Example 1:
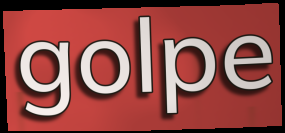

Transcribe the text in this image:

golpe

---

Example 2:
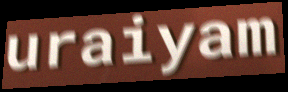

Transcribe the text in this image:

uraiyam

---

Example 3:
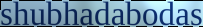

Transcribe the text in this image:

shubhadabodas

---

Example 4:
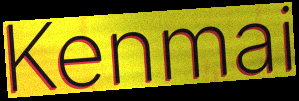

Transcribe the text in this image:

Kenmai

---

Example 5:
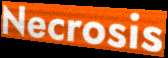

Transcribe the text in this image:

Necrosis